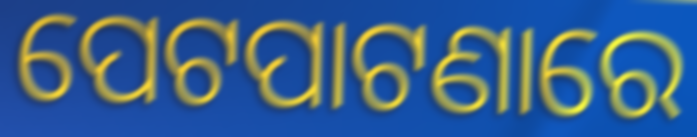
ପେଟପାଟଣାରେ